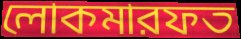
লোকমারফত